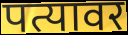
पत्यावर